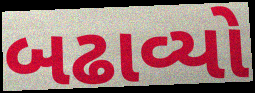
બઢાવ્યો